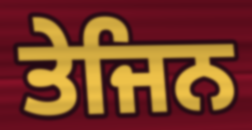
ਤੇਜਿਨ